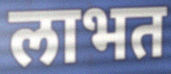
लाभत